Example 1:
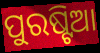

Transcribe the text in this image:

ପୁରଷ୍ଟିଆ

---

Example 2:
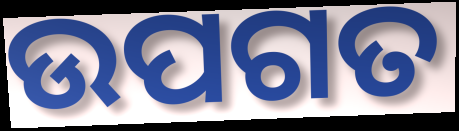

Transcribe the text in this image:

ଉପଗତ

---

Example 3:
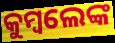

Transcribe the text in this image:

କୁମ୍ବଲେଙ୍କ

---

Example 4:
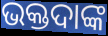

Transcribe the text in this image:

ଭକ୍ତଦାଙ୍କ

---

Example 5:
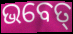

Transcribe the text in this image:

ଭବେତ୍